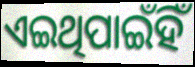
ଏଇଥିପାଇଁହିଁ